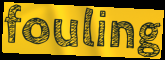
fouling